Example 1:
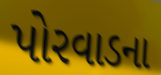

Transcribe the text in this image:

પોરવાડના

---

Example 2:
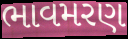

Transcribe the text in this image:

ભાવમરણ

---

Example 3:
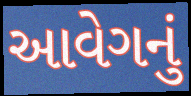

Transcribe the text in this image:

આવેગનું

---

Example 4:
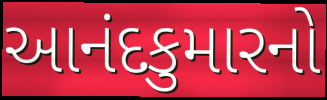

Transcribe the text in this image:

આનંદકુમારનો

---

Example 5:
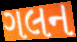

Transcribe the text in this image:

ગલન